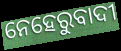
ନେହେରୁବାଦୀ